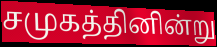
சமுகத்தினின்று